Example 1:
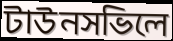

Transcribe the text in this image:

টাউনসভিলে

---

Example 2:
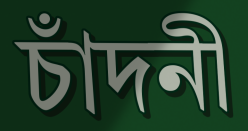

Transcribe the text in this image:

চাঁদনী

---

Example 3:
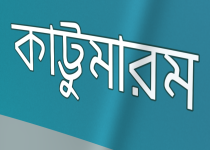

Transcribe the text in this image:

কাট্টুমারম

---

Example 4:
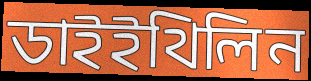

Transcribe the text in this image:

ডাইইথিলিন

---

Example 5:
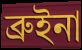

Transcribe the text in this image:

ব্রুইনা